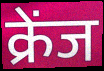
क्रेंज